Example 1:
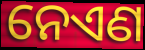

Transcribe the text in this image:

ନେଏଣ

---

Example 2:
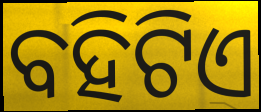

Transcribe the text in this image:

ବହିଟିଏ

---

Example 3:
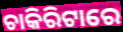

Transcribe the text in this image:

ଚାକିରିଟାରେ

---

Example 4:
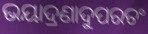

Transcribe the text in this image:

ଭୟାଦ୍ରଣାଦୁପରତଂ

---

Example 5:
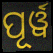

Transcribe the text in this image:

ପୂର୍ୱ